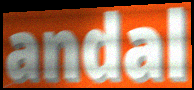
andal